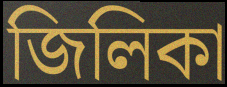
জিলিকা